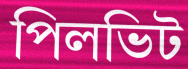
পিলভিট